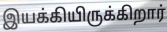
இயக்கியிருக்கிறார்